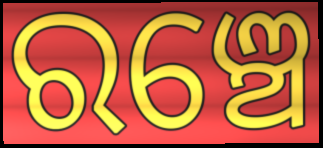
ରଞ୍ଚେ